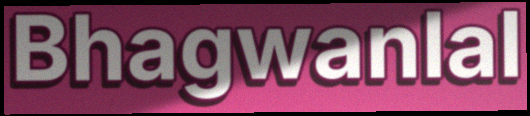
Bhagwanlal